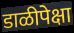
डाळीपेक्षा